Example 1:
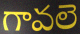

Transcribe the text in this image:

గావలె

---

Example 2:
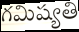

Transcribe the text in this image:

గమిష్యతి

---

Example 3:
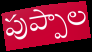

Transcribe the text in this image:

పుప్పాల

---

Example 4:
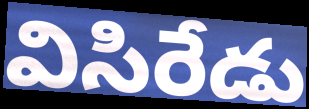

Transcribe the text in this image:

విసిరేడు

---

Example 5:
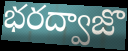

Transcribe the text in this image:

భరద్వాజొ